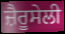
ਜ਼ੈਰੂਸੇਲੀ